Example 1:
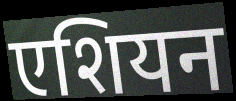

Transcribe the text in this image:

एशियन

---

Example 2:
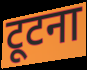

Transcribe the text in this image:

टूटना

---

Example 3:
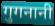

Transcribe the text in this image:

गुगनानी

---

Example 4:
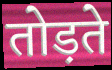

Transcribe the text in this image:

तोड़ते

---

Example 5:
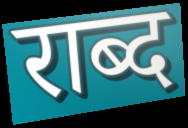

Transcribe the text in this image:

राब्द